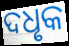
ଦଧୃକ